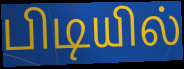
பிடியில்